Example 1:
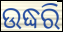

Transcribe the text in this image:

ଉଦ୍ଧରି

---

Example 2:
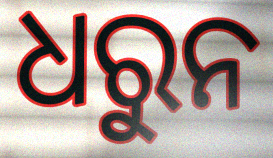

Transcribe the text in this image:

ଧରୁନ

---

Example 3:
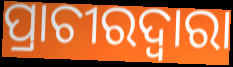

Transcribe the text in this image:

ପ୍ରାଚୀରଦ୍ୱାରା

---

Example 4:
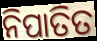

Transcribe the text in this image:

ନିପାତିତ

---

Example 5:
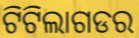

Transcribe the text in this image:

ଟିଟିଲାଗଡର